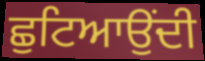
ਛੁਟਿਆਉਂਦੀ